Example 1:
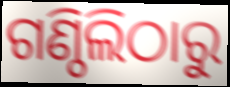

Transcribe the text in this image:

ଗଣ୍ଠିଲିଠାରୁ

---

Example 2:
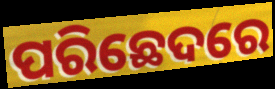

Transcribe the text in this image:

ପରିଛେଦରେ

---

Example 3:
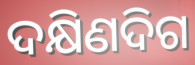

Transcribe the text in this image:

ଦକ୍ଷିଣଦିଗ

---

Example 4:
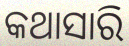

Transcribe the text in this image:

କଥାସାରି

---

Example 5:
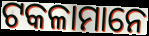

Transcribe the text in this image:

ଟକଳାମାନେ